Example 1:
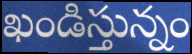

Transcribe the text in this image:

ఖండిస్తున్నం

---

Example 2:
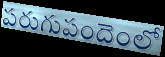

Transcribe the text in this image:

పరుగుపందెంలో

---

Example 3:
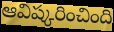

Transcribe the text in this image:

ఆవిష్కరించింది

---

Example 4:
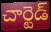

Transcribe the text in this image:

చార్టెడ్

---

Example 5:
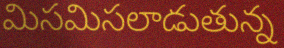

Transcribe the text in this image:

మిసమిసలాడుతున్న